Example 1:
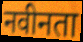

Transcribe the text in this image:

नवीनता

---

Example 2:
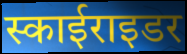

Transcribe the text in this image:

स्काईराइडर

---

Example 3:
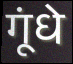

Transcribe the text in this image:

गूंधे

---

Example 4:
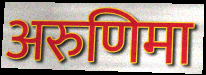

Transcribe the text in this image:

अरुणिमा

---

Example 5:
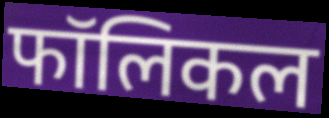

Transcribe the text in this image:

फॉलिकल